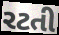
રટતી